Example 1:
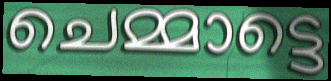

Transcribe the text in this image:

ചെമ്മാട്ടെ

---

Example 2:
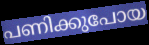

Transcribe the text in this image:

പണിക്കുപോയ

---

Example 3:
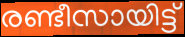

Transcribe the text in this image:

രണ്ടീസായിട്ട്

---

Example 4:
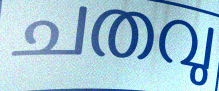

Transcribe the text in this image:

ചതവു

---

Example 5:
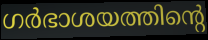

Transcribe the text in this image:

ഗർഭാശയത്തിന്റെ